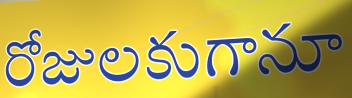
రోజులకుగానూ